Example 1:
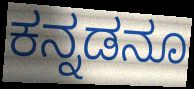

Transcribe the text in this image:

ಕನ್ನಡನೂ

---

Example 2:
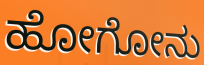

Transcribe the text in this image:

ಹೋಗೋನು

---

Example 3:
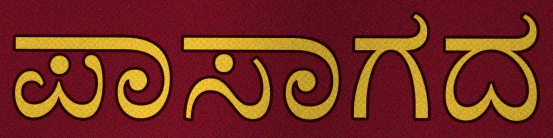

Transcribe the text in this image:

ಪಾಸಾಗದ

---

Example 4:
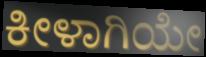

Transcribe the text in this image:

ಕೀಳಾಗಿಯೇ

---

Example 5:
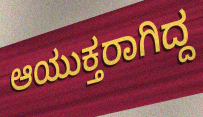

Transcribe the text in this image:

ಆಯುಕ್ತರಾಗಿದ್ದ